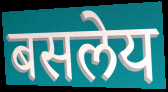
बसलेय